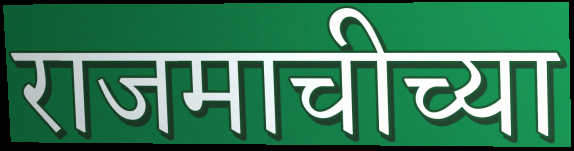
राजमाचीच्या